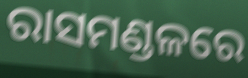
ରାସମଣ୍ଡଳରେ